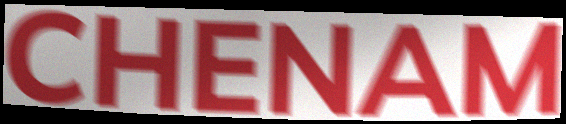
CHENAM